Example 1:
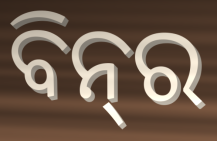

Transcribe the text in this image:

ବିନ୍‍ର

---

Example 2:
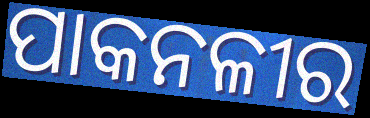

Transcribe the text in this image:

ପାକନଳୀର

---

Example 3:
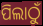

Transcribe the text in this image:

ପିଲାଠୁଁ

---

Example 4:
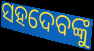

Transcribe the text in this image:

ସହଦେବଙ୍କୁ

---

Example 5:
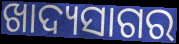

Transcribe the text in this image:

ଖାଦ୍ୟସାଗର